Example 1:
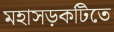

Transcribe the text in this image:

মহাসড়কটিতে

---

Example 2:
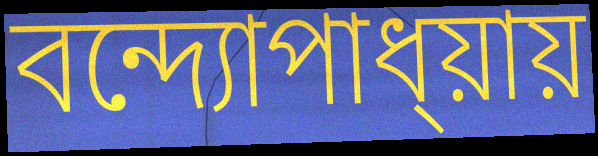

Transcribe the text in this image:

বন্দ্যোপাধ্য়ায়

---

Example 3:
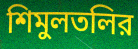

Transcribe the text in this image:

শিমুলতলির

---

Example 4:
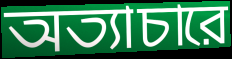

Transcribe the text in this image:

অত্যাচারে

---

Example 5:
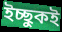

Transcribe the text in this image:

ইচ্ছুকই